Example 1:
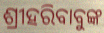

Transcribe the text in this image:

ଶ୍ରୀହରିବାବୁଙ୍କ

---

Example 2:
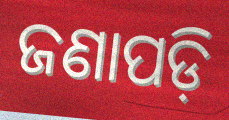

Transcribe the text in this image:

ଜଣାପଡ଼ି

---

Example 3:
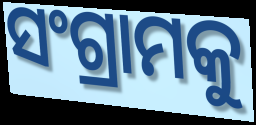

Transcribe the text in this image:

ସଂଗ୍ରାମକୁ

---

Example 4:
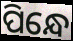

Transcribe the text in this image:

ପିନ୍ଧେ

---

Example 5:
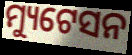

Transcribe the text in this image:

ମ୍ୟୁଟେସନ